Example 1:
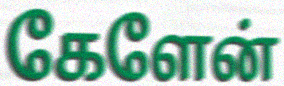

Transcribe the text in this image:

கேளேன்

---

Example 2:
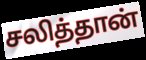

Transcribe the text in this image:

சலித்தான்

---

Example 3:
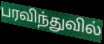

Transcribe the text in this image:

பரவிந்துவில்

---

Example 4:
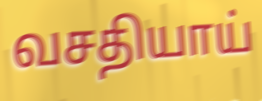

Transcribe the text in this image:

வசதியாய்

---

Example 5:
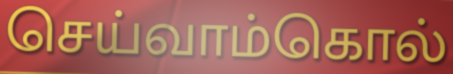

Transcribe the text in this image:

செய்வாம்கொல்